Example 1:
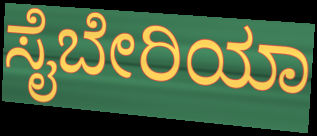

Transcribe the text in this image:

ಸೈಬೇರಿಯಾ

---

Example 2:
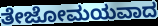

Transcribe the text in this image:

ತೇಜೋಮಯವಾದ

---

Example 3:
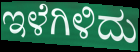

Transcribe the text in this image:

ಇಳೆಗಿಳಿದು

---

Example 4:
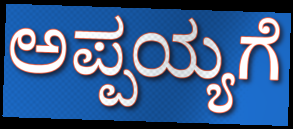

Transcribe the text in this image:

ಅಪ್ಪಯ್ಯಗೆ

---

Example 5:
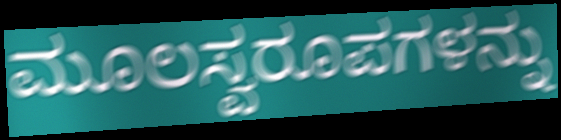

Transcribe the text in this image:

ಮೂಲಸ್ವರೂಪಗಳನ್ನು